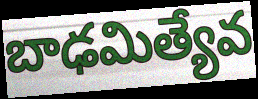
బాఢమిత్యేవ